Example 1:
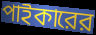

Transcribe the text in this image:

পাইকারের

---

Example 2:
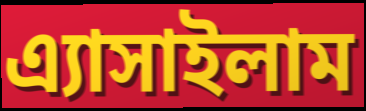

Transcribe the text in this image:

এ্যাসাইলাম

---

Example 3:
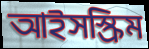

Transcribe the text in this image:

আইসস্ক্রিম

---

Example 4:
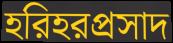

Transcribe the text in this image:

হরিহরপ্রসাদ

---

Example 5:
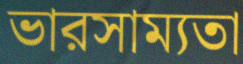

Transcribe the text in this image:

ভারসাম্যতা